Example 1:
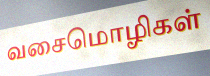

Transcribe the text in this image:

வசைமொழிகள்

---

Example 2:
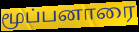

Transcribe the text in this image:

மூப்பனாரை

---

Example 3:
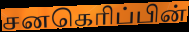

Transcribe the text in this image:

சனகெரிப்பின்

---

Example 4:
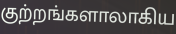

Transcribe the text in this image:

குற்றங்களாலாகிய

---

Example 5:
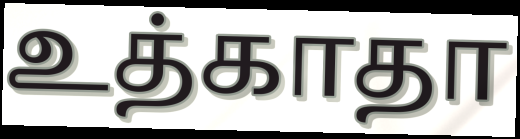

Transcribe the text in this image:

உத்காதா